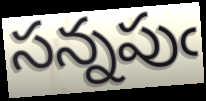
సన్నపుఁ